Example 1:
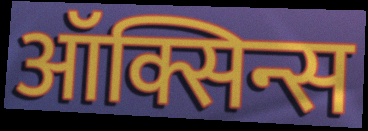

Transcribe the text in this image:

ऑक्सिन्स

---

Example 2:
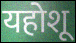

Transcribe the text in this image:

यहोशू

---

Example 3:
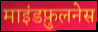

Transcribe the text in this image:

माइंडफ़ुलनेस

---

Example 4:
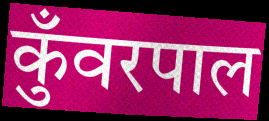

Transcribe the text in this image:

कुँवरपाल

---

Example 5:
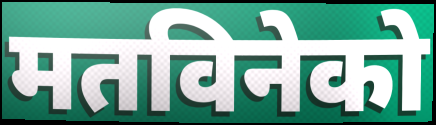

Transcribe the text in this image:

मतविनेको